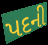
પદની